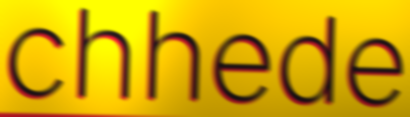
chhede